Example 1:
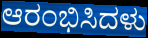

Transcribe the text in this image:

ಆರಂಭಿಸಿದಳು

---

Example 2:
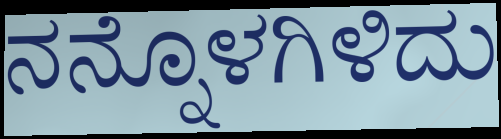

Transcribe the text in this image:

ನನ್ನೊಳಗಿಳಿದು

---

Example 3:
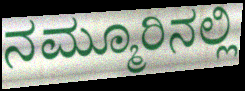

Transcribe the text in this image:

ನಮ್ಮೂರಿನಲ್ಲಿ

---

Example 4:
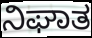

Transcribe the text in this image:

ನಿಘಾತ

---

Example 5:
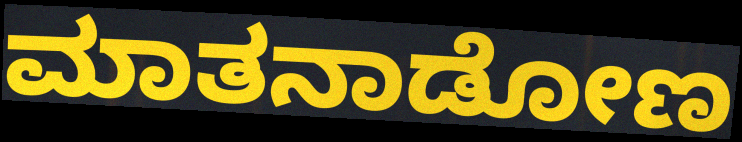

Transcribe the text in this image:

ಮಾತನಾಡೋಣ